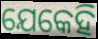
ଯେକେହି